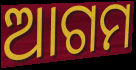
ଆଗମ